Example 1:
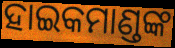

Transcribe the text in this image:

ହାଇକମାଣ୍ଡଙ୍କ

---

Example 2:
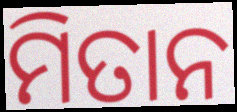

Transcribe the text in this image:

ମିତାନ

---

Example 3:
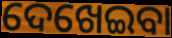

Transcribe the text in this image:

ଦେଖେଇବା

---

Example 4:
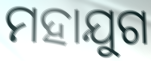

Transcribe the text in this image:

ମହାଯୁଗ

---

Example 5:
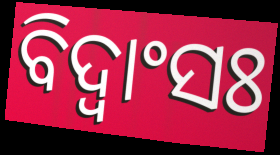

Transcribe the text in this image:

ବିଦ୍ଵାଂସଃ